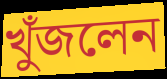
খুঁজলেন